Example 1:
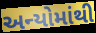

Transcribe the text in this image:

અન્યોમાંથી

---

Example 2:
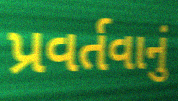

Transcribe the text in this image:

પ્રવર્તવાનું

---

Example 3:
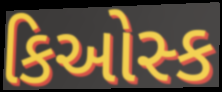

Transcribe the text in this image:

કિઓસ્ક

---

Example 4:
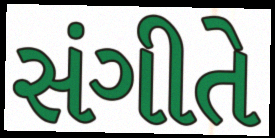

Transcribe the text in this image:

સંગીતે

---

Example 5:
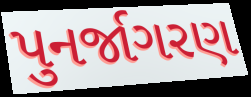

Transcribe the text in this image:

પુનર્જાગરણ